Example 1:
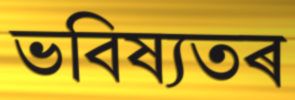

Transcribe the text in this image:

ভবিষ্যতৰ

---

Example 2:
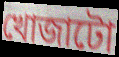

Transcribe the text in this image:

খোজাটো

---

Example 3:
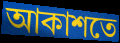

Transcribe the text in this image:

আকাশতে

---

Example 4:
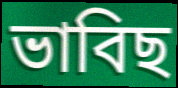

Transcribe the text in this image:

ভাবিছ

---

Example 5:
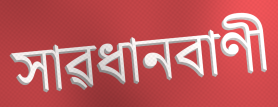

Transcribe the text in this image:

সাৱধানবাণী